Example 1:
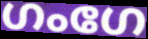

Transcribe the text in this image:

ഗംഗേ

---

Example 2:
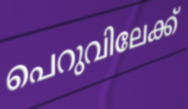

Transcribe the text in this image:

പെറുവിലേക്ക്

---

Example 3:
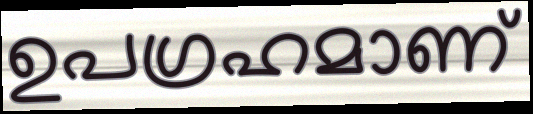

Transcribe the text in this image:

ഉപഗ്രഹമാണ്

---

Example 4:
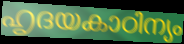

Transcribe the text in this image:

ഹൃദയകാഠിന്യം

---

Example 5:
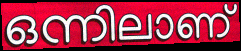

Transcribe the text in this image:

ഒന്നിലാണ്